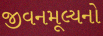
જીવનમૂલ્યનો